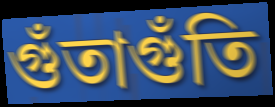
গুঁতাগুঁতি